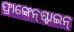
ଫ୍ରାଙ୍କେନ୍‌ଷ୍ଟାଇନ୍